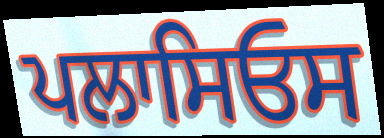
ਪਲਾਸਿਓਸ